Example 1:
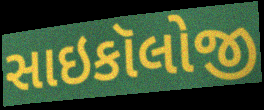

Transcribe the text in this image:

સાઇકૉલોજી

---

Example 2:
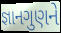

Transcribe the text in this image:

જ્ઞાનગુણને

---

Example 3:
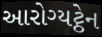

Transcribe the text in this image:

આરોગ્યટ્ઠેન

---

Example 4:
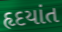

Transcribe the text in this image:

હૃદયાંત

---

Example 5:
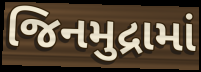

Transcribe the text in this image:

જિનમુદ્રામાં